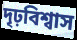
দৃঢ়বিশ্বাস